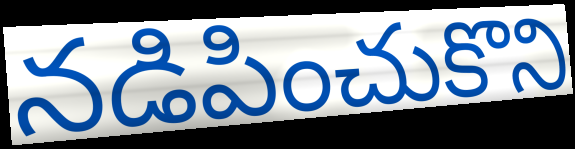
నడిపించుకొని